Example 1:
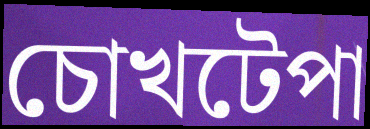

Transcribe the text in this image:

চোখটেপা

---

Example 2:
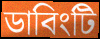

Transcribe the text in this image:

ডাবিংটি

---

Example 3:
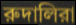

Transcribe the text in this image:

রুদালিরা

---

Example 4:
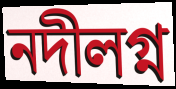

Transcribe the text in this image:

নদীলগ্ন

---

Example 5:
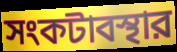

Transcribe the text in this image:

সংকটাবস্থার